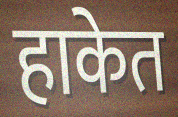
हाकेत